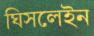
ঘিসলেইন